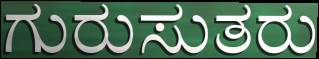
ಗುರುಸುತರು